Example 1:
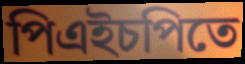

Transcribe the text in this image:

পিএইচপিতে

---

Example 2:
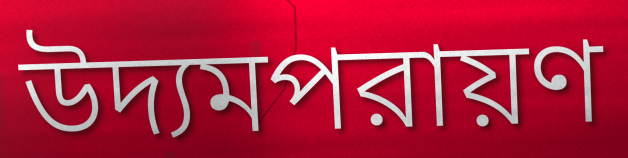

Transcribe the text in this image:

উদ্যমপরায়ণ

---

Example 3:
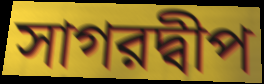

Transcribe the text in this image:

সাগরদ্বীপ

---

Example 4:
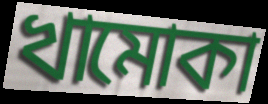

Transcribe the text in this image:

খামোকা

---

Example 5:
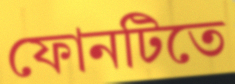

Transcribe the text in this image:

ফোনটিতে